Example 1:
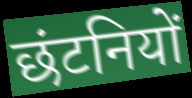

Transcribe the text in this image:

छंटनियों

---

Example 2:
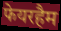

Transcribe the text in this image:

फेयरहैम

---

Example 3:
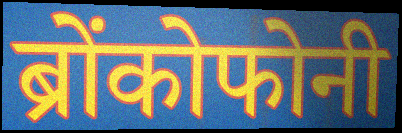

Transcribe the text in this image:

ब्रोंकोफोनी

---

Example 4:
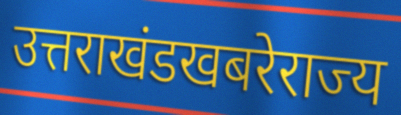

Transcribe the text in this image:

उत्तराखंडखबरेराज्य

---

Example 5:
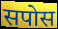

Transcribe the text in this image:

सपोस